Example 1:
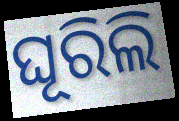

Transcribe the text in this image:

ଘୂରିଲି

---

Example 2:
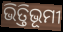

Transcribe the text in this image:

ଭିତ୍ତିଭୂମୀ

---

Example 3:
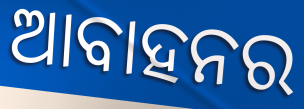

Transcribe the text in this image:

ଆବାହନର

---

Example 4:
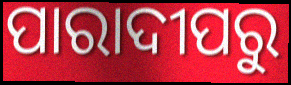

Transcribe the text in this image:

ପାରାଦୀପରୁ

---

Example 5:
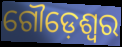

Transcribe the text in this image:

ଗୌଡ଼େଶ୍ୱର